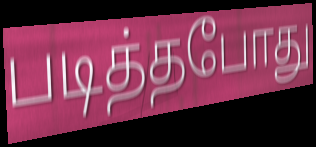
படித்தபோது